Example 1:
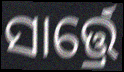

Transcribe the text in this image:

ସାର୍ତ୍ତ୍ରେ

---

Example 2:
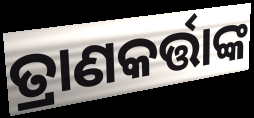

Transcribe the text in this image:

ତ୍ରାଣକର୍ତ୍ତାଙ୍କ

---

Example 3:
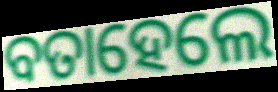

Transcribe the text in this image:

ବତାହେଲେ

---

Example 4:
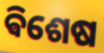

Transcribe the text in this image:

ଵିଶେଷ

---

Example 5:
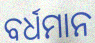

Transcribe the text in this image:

ବର୍ଧମାନ